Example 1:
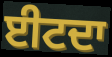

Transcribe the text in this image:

ਈਟਦਾ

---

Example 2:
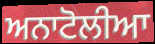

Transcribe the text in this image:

ਅਨਾਟੋਲੀਆ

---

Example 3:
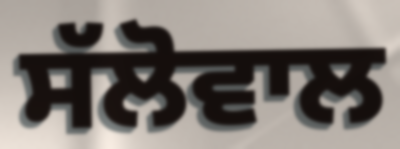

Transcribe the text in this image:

ਸੱਲੋਵਾਲ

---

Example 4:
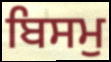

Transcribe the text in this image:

ਬਿਸਮੁ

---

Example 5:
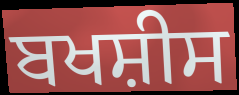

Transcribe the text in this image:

ਬਖਸ਼ੀਸ